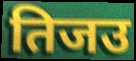
तिजउ